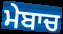
ਮੇਬਾਚ